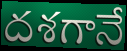
దశగానే